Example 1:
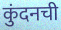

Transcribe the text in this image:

कुंदनची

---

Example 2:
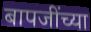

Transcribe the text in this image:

बापजींच्या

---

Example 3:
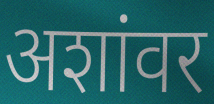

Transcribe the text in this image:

अशांवर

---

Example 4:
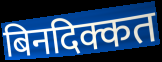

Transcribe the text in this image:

बिनदिक्कत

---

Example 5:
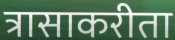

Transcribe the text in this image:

त्रासाकरीता